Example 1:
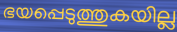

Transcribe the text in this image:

ഭയപ്പെടുത്തുകയില്ല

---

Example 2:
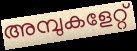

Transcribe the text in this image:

അമ്പുകളേറ്റ്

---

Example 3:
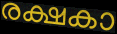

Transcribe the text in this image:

രക്ഷകാ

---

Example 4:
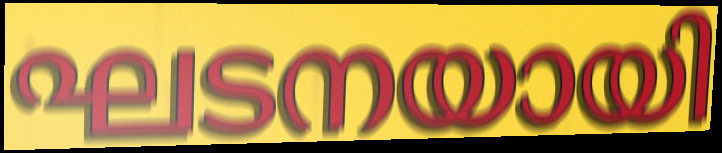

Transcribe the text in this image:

ഘടനയായി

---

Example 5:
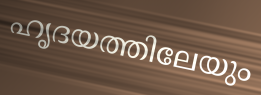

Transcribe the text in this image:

ഹൃദയത്തിലേയും